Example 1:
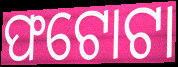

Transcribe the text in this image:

ଫଟୋଟା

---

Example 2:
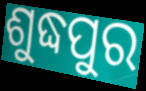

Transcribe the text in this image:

ଶୁଦ୍ଧପୁର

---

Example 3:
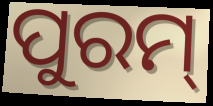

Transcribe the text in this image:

ପୁରମ୍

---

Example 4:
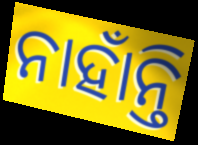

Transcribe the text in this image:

ନାହାଁନ୍ତି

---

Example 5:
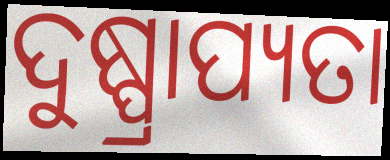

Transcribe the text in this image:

ଦୁଷ୍ପ୍ରାପ୍ୟତା